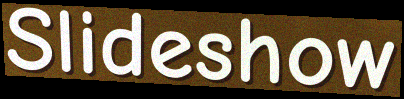
Slideshow